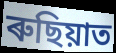
ৰুছিয়াত